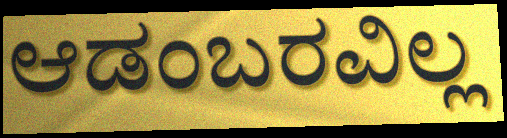
ಆಡಂಬರವಿಲ್ಲ